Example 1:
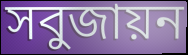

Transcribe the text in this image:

সবুজায়ন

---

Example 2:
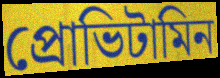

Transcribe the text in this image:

প্রোভিটামিন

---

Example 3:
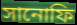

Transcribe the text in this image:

সানোফি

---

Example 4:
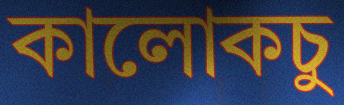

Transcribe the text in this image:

কালোকচু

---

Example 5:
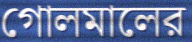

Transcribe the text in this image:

গোলমালের